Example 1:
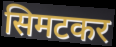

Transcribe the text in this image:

सिमटकर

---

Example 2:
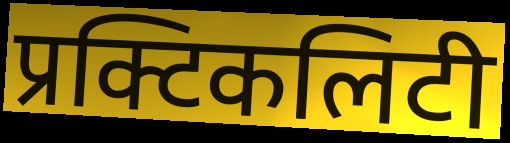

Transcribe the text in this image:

प्रक्टिकलिटी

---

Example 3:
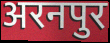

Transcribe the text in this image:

अरनपुर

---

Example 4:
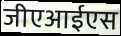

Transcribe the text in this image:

जीएआईएस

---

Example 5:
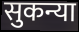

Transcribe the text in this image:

सुकन्या